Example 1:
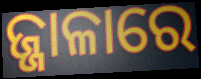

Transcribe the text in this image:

ଜ୍ଜାଳାରେ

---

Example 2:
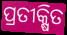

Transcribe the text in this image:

ପ୍ରତୀକ୍ଷିତ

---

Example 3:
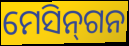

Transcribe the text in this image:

ମେସିନ୍‌ଗନ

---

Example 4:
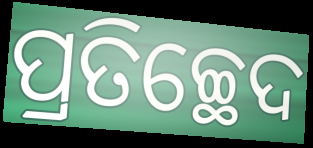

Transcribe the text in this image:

ପ୍ରତିଚ୍ଛେଦ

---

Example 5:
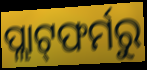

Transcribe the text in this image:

ପ୍ଲାଟ୍‌ଫର୍ମରୁ